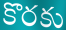
కొరకు